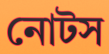
নোটস